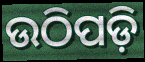
ଉଠିପଡ଼ି